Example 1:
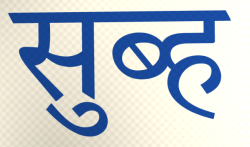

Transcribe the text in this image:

सुब्ह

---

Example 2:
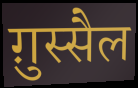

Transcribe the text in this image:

ग़ुस्सैल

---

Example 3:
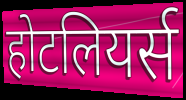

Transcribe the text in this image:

होटलियर्स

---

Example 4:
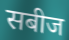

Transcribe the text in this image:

सबीज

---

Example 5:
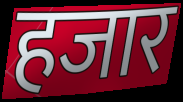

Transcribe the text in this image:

हजार